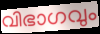
വിഭാഗവും